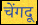
चेंगदू